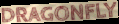
DRAGONFLY